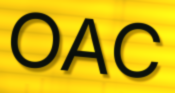
OAC